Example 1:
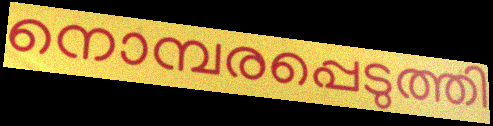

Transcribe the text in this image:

നൊമ്പരപ്പെടുത്തി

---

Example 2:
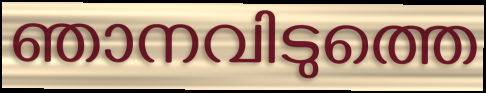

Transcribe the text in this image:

ഞാനവിടുത്തെ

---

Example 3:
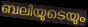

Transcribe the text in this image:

ബലിയുടെയും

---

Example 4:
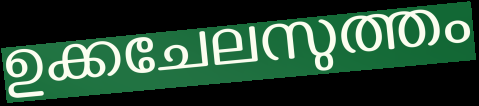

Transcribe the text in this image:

ഉക്കചേലസുത്തം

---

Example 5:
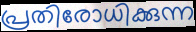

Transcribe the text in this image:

പ്രതിരോധിക്കുന്ന